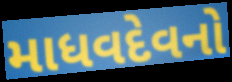
માધવદેવનો